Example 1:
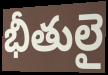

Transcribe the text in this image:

భీతులై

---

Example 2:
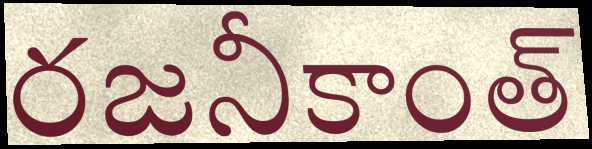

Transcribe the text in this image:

రజనీకాంత్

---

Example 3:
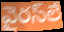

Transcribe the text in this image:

వైరస్‌లే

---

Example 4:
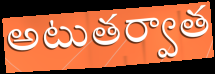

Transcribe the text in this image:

అటుతర్వాత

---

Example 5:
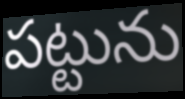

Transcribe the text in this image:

పట్టును